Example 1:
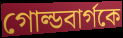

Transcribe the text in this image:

গোল্ডবার্গকে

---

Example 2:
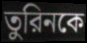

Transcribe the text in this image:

তুরিনকে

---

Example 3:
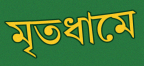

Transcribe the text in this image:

মৃতধামে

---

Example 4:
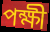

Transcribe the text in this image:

পক্ষী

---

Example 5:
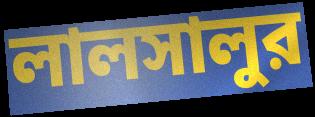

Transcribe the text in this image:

লালসালুর